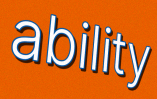
ability